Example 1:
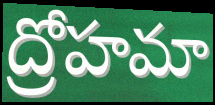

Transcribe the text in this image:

ద్రోహమా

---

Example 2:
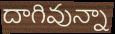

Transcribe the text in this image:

దాగివున్నా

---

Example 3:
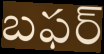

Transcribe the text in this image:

బఫర్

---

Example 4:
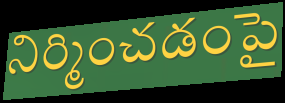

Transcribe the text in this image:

నిర్మించడంపై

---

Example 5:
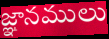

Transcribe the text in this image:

జ్ఞానములు